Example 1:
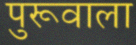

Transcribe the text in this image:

पुरूवाला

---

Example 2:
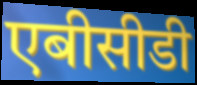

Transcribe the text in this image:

एबीसीडी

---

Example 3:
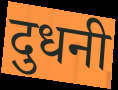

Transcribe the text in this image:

दुधनी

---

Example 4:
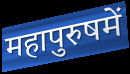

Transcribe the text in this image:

महापुरुषमें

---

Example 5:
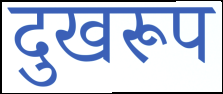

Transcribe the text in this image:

दुखरूप